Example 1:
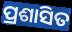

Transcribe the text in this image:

ପ୍ରଶାସିତ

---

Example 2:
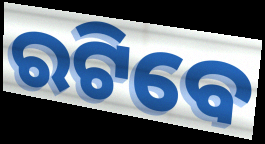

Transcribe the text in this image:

ରଟିବେ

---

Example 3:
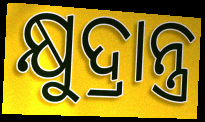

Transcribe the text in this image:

କ୍ଷୁଦ୍ରାନ୍ତ୍ର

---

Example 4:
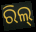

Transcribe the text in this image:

ରିଲ୍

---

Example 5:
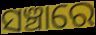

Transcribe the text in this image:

ସଞ୍ଚାରେ